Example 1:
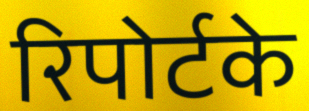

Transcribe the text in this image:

रिपोर्टके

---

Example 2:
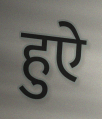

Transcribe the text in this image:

हुऐ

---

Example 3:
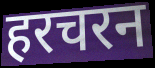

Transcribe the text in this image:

हरचरन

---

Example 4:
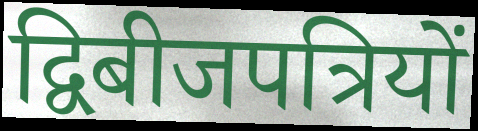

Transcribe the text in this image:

द्विबीजपत्रियों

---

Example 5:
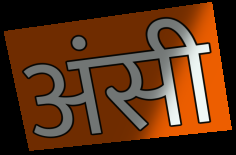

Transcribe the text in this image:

अंसी